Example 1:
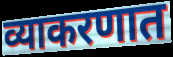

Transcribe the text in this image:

व्याकरणात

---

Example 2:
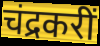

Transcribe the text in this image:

चंद्रकरीं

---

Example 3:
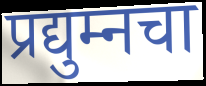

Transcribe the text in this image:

प्रद्युम्नचा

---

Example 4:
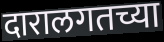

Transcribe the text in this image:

दारालगतच्या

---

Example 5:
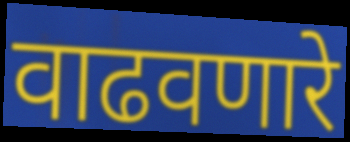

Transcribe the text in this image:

वाढवणारे